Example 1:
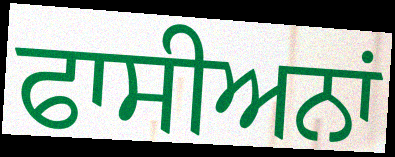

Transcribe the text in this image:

ਫਾਸੀਅਨਾਂ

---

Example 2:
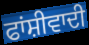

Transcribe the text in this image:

ਫਾਂਸ਼ੀਵਾਦੀ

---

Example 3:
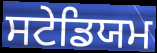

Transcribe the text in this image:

ਸਟੇਡਿਯਮ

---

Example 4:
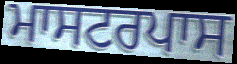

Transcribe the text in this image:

ਮਾਸਟਰਪਾਸ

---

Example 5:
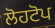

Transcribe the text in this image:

ਲੋਹਟੋਪ